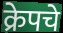
क्रेपचे